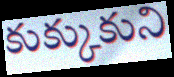
కుక్కుకుని